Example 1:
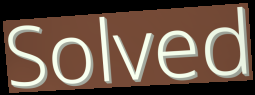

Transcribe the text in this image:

Solved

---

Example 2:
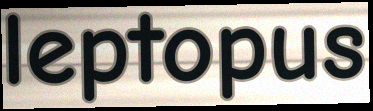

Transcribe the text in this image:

leptopus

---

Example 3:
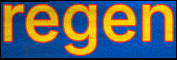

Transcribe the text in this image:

regen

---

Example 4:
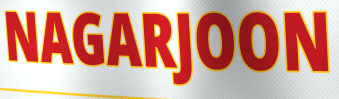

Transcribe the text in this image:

NAGARJOON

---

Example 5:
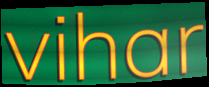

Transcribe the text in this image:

vihar